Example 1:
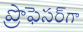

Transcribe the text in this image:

ప్రొఫెసర్‌గా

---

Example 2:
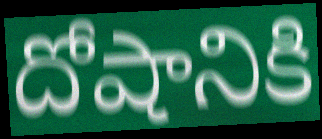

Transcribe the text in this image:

దోషానికి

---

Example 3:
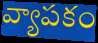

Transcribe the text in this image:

వ్యాపకం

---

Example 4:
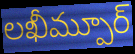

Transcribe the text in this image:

లఖీమ్పూర్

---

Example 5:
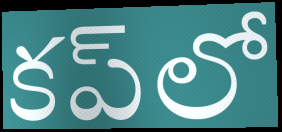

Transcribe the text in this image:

కప్‌లో